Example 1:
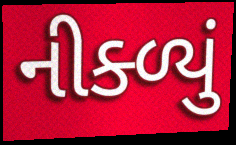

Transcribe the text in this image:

નીક્ળ્યું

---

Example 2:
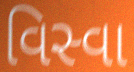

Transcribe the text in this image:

વિસ્વા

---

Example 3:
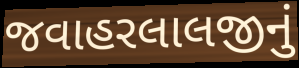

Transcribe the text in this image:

જવાહરલાલજીનું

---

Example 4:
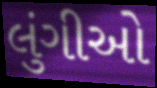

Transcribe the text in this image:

લુંગીઓ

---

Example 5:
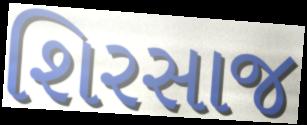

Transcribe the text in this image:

શિરસાજ